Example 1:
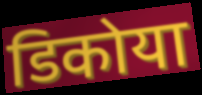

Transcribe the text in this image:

डिकोया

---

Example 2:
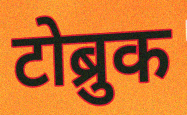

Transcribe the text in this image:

टोब्रुक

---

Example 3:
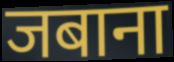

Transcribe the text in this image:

जबाना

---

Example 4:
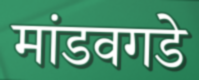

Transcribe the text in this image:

मांडवगडे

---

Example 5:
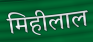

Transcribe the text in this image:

मिहीलाल